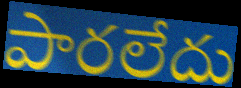
పారలేదు